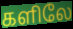
களிலே